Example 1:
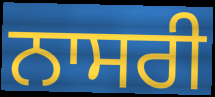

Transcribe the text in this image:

ਨਾਸਰੀ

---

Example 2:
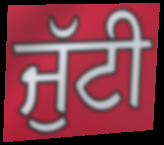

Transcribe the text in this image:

ਜੁੱਟੀ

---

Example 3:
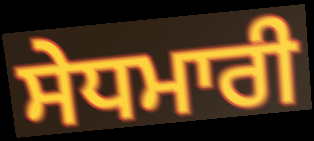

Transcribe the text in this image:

ਸੇਧਮਾਰੀ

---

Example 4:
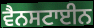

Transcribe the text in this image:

ਵੈਨਸਟਾਈਨ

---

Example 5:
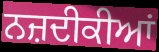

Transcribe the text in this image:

ਨਜ਼ਦੀਕੀਆਂ